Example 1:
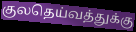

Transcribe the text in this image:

குலதெய்வத்துக்கு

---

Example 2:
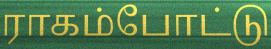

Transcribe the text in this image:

ராகம்போட்டு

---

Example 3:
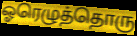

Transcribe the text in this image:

ஓரெழுத்தொரு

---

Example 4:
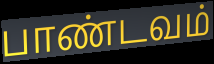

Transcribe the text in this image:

பாண்டவம்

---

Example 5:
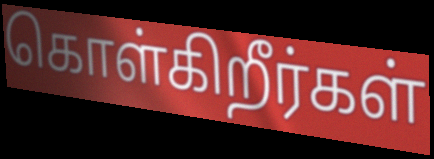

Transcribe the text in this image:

கொள்கிறீர்கள்